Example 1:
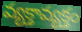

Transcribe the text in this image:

వ్యక్తావ్యక్తం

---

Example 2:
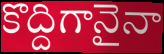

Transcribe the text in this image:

కొద్దిగానైనా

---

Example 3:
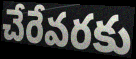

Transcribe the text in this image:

చేరేవరకు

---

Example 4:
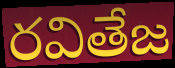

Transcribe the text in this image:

రవితేజ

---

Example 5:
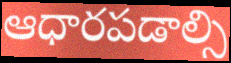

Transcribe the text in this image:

ఆధారపడాల్సి